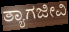
ತ್ಯಾಗಜೀವಿ